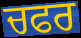
ਚਫਰ